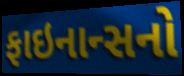
ફાઇનાન્સનો